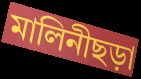
মালিনীছড়া